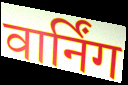
वार्निंग